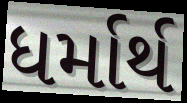
ધર્માર્થ